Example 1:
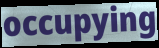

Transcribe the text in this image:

occupying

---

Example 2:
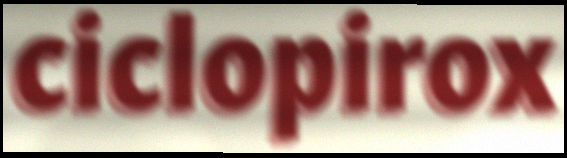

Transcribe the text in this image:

ciclopirox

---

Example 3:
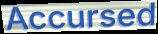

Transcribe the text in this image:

Accursed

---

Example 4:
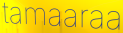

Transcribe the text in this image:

tamaaraa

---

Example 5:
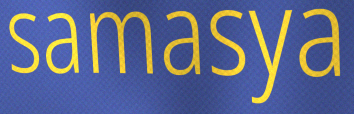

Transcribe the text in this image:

samasya